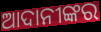
ଆଦାନୀଙ୍କର